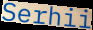
Serhii